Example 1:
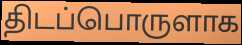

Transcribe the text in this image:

திடப்பொருளாக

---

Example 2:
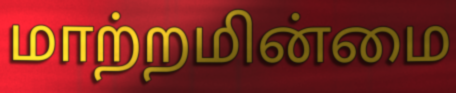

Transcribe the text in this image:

மாற்றமின்மை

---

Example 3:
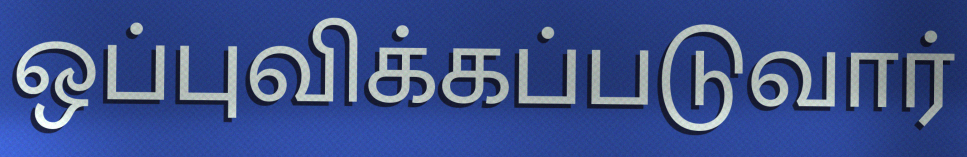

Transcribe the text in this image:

ஒப்புவிக்கப்படுவார்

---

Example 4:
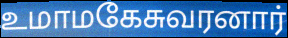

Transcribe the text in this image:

உமாமகேசுவரனார்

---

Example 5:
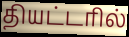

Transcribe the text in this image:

தியட்டரில்